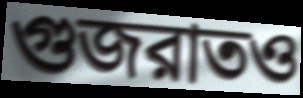
গুজরাতও